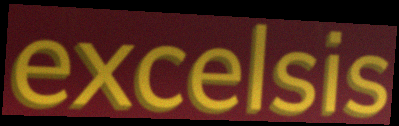
excelsis